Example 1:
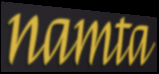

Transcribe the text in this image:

namta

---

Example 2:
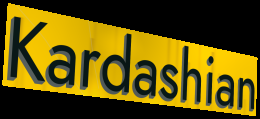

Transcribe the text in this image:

Kardashian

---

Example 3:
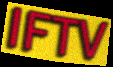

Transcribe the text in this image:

IFTV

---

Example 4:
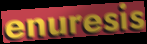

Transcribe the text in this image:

enuresis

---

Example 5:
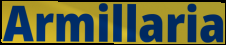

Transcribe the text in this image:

Armillaria